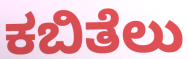
ಕಬಿತೆಲು